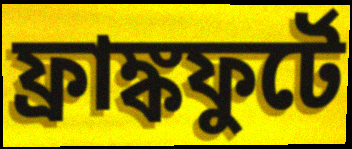
ফ্রাঙ্কফুর্টে